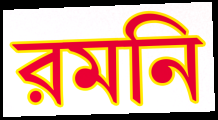
রমনি